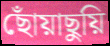
ছোঁয়াছুয়ি